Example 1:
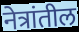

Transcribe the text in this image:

नेत्रांतील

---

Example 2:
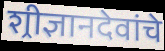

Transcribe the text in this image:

श्रीज्ञानदेवांचे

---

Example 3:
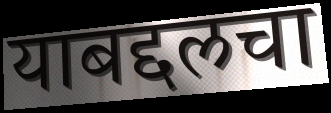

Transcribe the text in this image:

याबद्दलचा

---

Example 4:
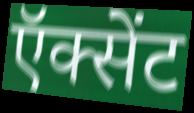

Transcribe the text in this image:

ऍक्सेंट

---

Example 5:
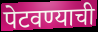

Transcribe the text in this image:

पेटवण्याची